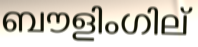
ബൗളിംഗില്